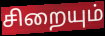
சிறையும்